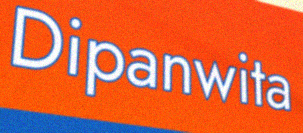
Dipanwita